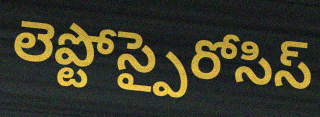
లెప్టోస్పైరోసిస్